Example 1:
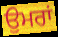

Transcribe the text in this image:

ਉਮਰਾਂ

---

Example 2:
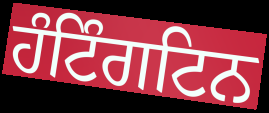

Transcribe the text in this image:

ਹੰਟਿੰਗਟਿਨ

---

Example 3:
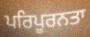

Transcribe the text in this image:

ਪਰਿਪੂਰਨਤਾ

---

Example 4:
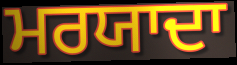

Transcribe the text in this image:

ਮਰਯਾਦਾ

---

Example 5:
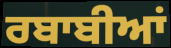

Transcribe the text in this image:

ਰਬਾਬੀਆਂ